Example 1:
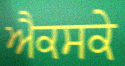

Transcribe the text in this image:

ਐਕਸਕੇ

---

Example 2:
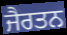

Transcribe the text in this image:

ਜੈਰਤਨ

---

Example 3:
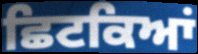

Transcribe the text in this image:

ਛਿਟਕਿਆਂ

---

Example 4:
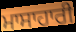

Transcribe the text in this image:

ਮਾਸਾਹਾਰੀ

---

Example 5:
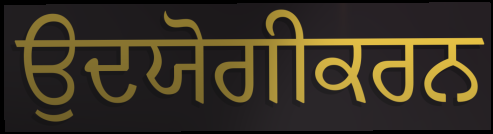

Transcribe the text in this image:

ਉਦਯੋਗੀਕਰਨ